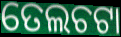
ତେଲଚଟା